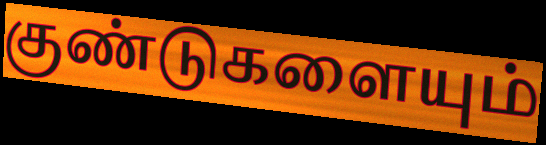
குண்டுகளையும்